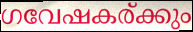
ഗവേഷകര്ക്കും